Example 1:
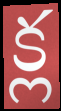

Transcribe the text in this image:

క్ల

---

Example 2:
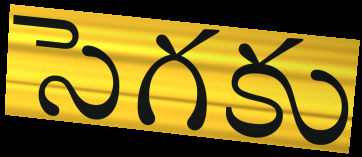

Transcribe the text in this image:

సెగకు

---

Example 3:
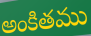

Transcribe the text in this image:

అంకితము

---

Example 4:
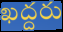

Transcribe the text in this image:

ఖద్దరు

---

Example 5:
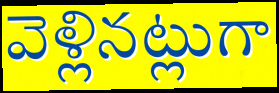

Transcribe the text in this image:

వెళ్లినట్లుగా